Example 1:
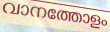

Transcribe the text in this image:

വാനത്തോളം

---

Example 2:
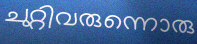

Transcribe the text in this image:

ചുറ്റിവരുന്നൊരു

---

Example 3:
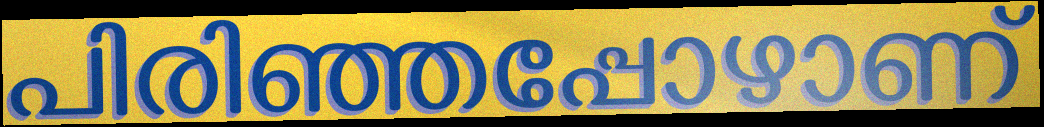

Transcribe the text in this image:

പിരിഞ്ഞപ്പോഴാണ്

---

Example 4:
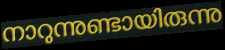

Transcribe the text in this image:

നാറുന്നുണ്ടായിരുന്നു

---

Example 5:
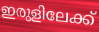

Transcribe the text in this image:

ഇരുളിലേക്ക്